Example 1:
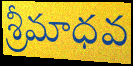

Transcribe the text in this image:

శ్రీమాధవ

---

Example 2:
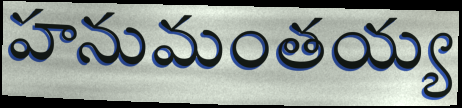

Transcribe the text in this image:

హనుమంతయ్య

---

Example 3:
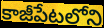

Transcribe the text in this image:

కాజీపేటలోని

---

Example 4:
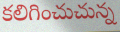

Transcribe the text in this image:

కలిగించుచున్న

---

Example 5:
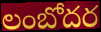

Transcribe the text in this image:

లంబోదర